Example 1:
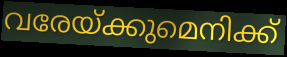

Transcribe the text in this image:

വരേയ്ക്കുമെനിക്ക്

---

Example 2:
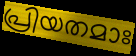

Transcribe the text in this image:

പ്രിയതമാഃ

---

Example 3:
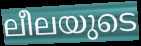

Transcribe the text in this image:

ലീലയുടെ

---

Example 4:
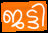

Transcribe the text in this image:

ജട്ടി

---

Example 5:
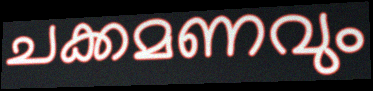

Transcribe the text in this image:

ചക്കമണവും